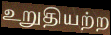
உறுதியற்ற